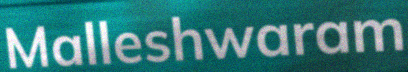
Malleshwaram